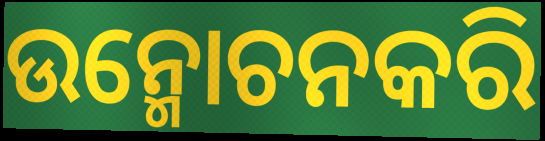
ଉନ୍ମୋଚନକରି